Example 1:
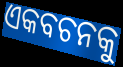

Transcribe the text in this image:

ଏକବଚନକୁ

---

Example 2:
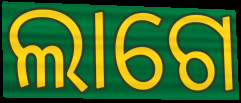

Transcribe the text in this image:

ଲାଗେ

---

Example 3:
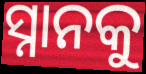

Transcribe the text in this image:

ସ୍ନାନକୁ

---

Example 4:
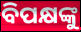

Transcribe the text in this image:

ବିପକ୍ଷଙ୍କୁ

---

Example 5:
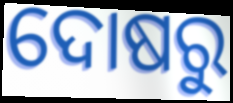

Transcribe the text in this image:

ଦୋଷରୁ